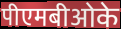
पीएमबीओके